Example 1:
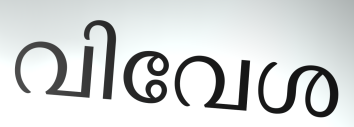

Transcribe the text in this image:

വിവേശ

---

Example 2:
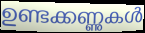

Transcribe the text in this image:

ഉണ്ടക്കണ്ണുകൾ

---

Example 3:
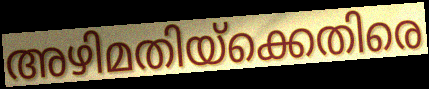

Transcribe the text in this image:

അഴിമതിയ്ക്കെതിരെ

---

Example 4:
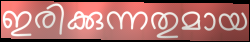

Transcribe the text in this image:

ഇരിക്കുന്നതുമായ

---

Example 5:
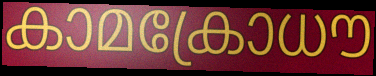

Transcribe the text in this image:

കാമക്രോധൗ